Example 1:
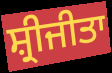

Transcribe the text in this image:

ਸ਼੍ਰੀਜੀਤਾ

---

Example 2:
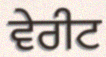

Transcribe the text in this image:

ਵੇਰੀਟ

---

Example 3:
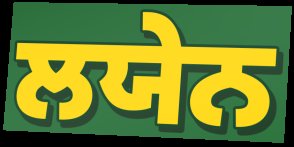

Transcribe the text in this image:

ਲਯੇਨ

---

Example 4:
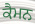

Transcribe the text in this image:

ਕੈਮਨ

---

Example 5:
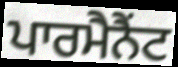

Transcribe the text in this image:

ਪਾਰਮੈਨੈਂਟ